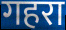
गहरा